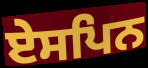
ਏਸਪਿਨ